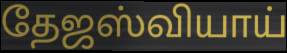
தேஜஸ்வியாய்